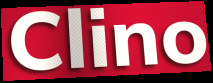
Clino